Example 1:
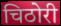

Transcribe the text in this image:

चिठोरी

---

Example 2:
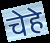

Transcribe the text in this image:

चेहे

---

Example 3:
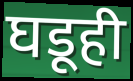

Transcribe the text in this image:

घडूही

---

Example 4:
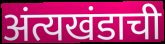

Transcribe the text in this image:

अंत्यखंडाची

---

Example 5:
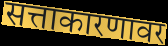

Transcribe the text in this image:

सत्ताकारणावर